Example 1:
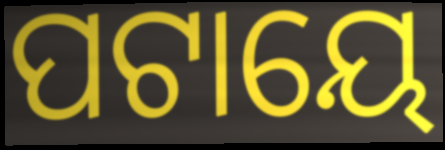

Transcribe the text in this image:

ପଟାୟେ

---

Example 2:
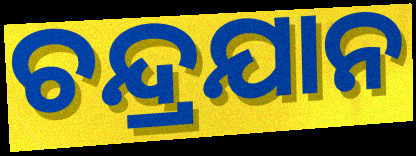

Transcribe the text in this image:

ଚନ୍ଦ୍ରଯାନ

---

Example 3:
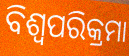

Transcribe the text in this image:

ବିଶ୍ୱପରିକ୍ରମା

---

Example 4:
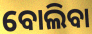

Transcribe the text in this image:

ବୋଲିବା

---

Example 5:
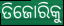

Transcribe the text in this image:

ତିଜୋରିକୁ